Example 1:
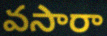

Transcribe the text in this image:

వసారా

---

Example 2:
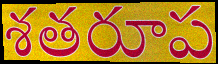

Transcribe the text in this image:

శతరూప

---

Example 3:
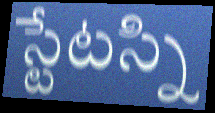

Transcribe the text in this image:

స్టేటస్ని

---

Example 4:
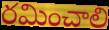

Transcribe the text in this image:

రమించాలి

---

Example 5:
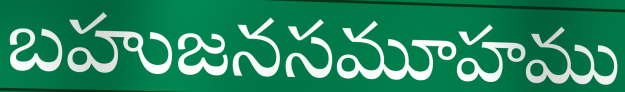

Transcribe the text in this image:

బహుజనసమూహము